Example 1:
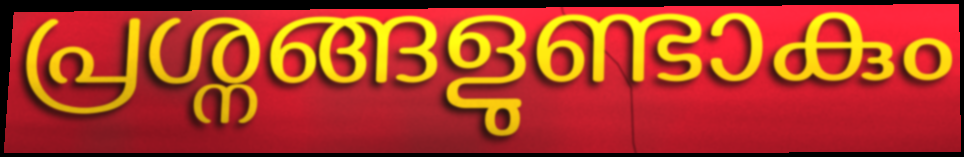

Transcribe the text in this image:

പ്രശ്നങ്ങളുണ്ടാകും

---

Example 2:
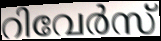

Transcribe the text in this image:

റിവേർസ്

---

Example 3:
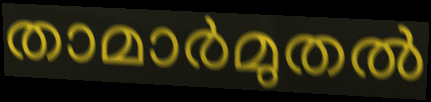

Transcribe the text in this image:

താമാർമുതൽ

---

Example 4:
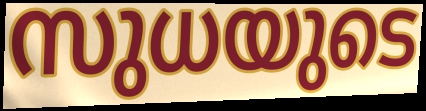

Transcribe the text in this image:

സുധയുടെ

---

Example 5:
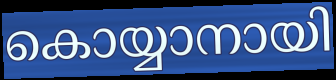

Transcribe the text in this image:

കൊയ്യാനായി